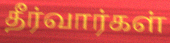
தீர்வார்கள்